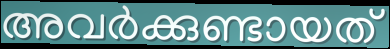
അവർക്കുണ്ടായത്